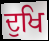
ਦੁਖਿ